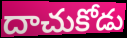
దాచుకోడు